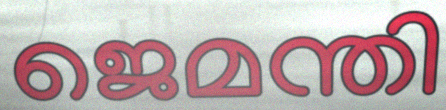
ജെമന്തി